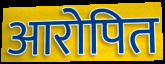
आरोपित